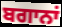
ਬਗਾਨਾਂ